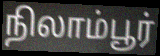
நிலாம்பூர்